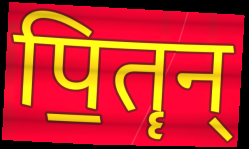
पि॒तॄन्